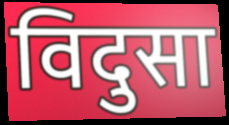
विदुसा